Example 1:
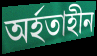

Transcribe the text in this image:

অৰ্হতাহীন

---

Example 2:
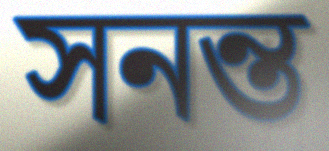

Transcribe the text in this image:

সনন্ত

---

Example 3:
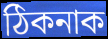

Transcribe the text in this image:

ঠিকনাক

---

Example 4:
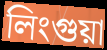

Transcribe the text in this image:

লিংগুয়া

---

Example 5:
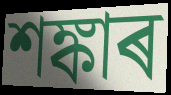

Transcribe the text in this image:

শঙ্কাৰ